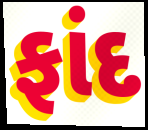
ફાંદ